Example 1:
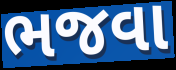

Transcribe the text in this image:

ભજવા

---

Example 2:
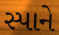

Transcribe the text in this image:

સ્પાને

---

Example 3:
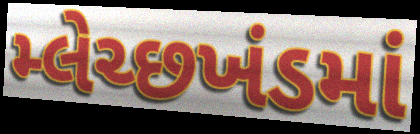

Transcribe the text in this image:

મ્લેચ્છખંડમાં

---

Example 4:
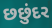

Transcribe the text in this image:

છછુંદર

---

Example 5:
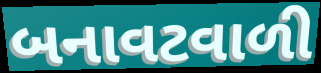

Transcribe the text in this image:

બનાવટવાળી